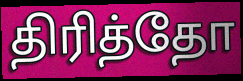
திரித்தோ